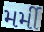
મર્મી